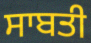
ਸਾਬਤੀ